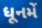
ધૂનમેં